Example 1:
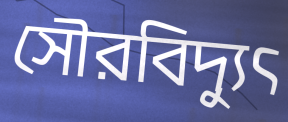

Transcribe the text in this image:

সৌরবিদ্যুৎ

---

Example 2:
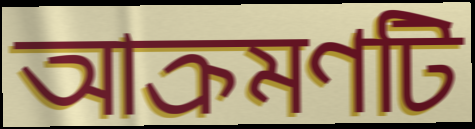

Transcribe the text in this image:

আক্রমণটি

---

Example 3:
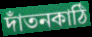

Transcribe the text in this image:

দাঁতনকাঠি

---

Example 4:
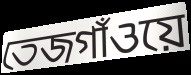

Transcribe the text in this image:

তেজগাঁওয়ে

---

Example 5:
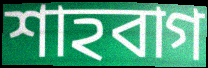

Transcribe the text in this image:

শাহবাগ